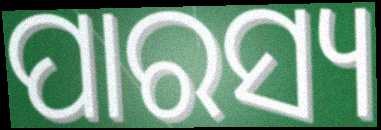
ପାରସ୍ୟ